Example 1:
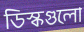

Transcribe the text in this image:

ডিস্কগুলো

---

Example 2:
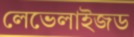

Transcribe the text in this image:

লেভেলাইজড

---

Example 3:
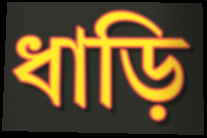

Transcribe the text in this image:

ধাড়ি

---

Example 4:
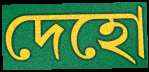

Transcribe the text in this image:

দেহো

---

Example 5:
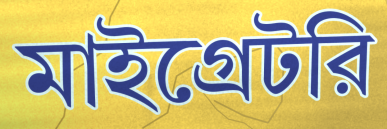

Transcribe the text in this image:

মাইগ্রেটরি